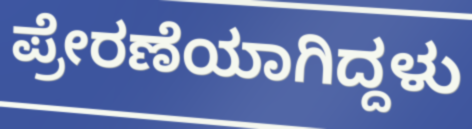
ಪ್ರೇರಣೆಯಾಗಿದ್ದಳು